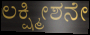
ಲಕ್ಷ್ಮೀಶನೇ